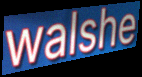
walshe